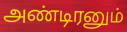
அண்டிரனும்